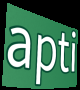
apti